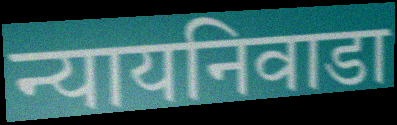
न्यायनिवाडा